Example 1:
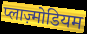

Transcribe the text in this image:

प्लाज़्मोडियम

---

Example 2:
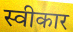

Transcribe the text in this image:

स्वीकार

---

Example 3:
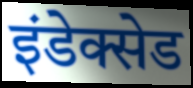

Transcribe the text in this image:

इंडेक्सेड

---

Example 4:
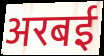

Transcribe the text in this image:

अरबई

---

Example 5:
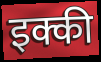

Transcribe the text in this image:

इक्की